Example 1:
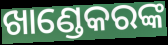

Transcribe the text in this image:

ଖାଣ୍ଡେକରଙ୍କ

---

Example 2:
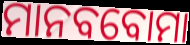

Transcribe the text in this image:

ମାନବବୋମା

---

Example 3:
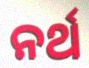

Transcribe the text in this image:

ନର୍ଥ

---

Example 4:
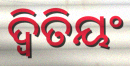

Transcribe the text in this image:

ଦ୍ୱିତିୟଂ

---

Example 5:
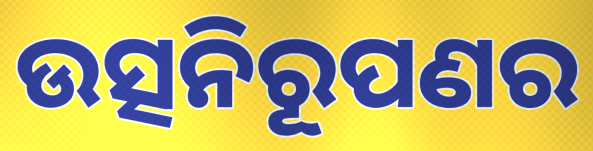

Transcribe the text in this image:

ଉତ୍ସନିରୂପଣର